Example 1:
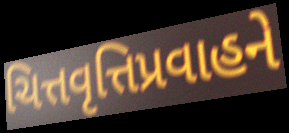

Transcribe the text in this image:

ચિત્તવૃત્તિપ્રવાહને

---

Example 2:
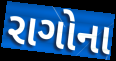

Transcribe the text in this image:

રાગોના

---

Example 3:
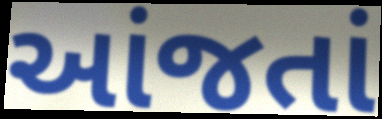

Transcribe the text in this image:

આંજતાં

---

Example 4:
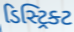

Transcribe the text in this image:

ડિસ્ટ્રિક્ટ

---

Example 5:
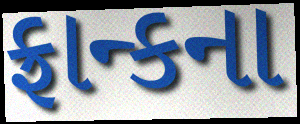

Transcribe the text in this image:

ફ્રાન્કના